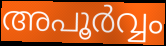
അപൂർവ്വം